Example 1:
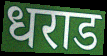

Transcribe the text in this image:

धराड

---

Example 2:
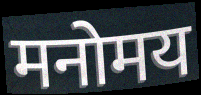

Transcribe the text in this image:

मनोमय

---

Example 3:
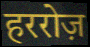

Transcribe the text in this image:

हररोज़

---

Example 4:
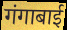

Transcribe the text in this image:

गंगाबाई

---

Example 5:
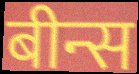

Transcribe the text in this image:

बीन्‍स